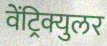
वेंट्रिक्युलर